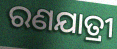
ରଣଯାତ୍ରୀ